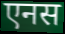
एनस